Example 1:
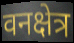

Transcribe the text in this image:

वनक्षेत्र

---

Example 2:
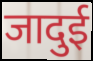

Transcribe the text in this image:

जादुई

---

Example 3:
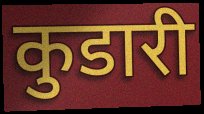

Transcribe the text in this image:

कुडारी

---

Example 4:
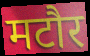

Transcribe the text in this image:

मटौर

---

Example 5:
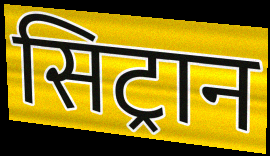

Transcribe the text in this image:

सिट्रान